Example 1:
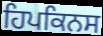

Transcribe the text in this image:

ਹਿਪਕਿਨਸ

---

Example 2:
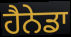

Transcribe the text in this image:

ਹੈਨੇਡਾ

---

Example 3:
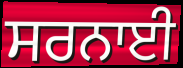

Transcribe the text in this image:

ਸਰਨਾਈ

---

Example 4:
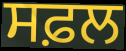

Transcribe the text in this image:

ਸਫ਼ਲ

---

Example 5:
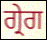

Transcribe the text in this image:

ਗ੍ਰੇਗ